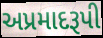
અપ્રમાદરૂપી